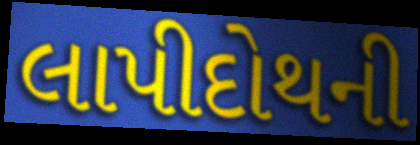
લાપીદોથની